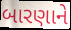
બારણાને